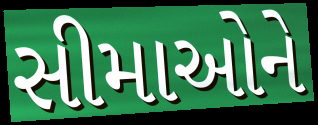
સીમાઓને